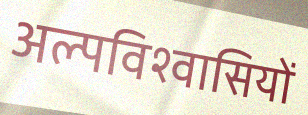
अल्पविश्वासियों